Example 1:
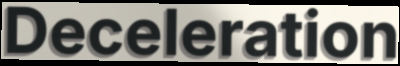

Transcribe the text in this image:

Deceleration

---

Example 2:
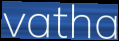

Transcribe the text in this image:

vatha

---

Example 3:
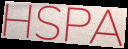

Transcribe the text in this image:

HSPA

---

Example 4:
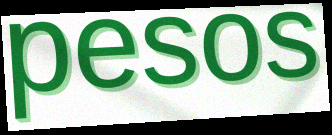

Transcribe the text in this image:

pesos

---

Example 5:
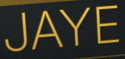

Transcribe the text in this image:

JAYE